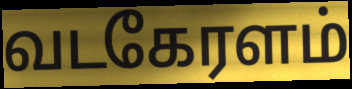
வடகேரளம்